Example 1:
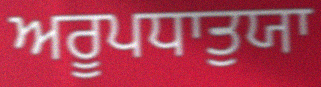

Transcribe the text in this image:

ਅਰੂਪਧਾਤੁਯਾ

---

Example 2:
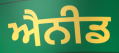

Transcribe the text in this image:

ਐਨੀਡ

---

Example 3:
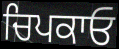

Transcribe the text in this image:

ਚਿਪਕਾਓ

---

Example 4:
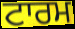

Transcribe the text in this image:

ਟਾਰਮ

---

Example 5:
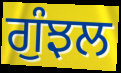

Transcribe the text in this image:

ਗੁੰਝਲ